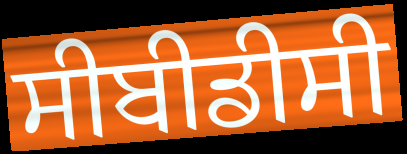
ਸੀਬੀਡੀਸੀ